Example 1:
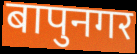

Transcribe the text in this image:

बापुनगर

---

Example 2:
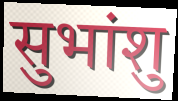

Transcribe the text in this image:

सुभांशु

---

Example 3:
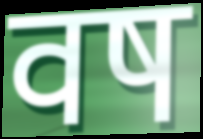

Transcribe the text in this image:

वष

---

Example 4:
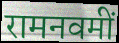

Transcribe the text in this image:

रामनवमीं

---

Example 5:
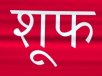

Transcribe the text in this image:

शूफ